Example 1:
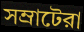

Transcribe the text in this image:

সম্রাটেরা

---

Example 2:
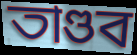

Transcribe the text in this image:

তাণ্ডব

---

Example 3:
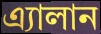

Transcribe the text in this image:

এ্যালান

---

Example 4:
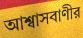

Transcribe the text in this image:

আশ্বাসবাণীর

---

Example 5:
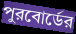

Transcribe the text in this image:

পুরবোর্ডের